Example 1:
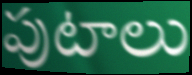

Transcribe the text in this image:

పుటాలు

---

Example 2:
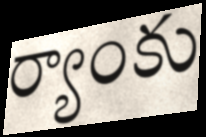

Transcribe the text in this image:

ర్యాంకు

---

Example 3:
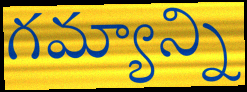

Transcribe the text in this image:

గమ్యాన్ని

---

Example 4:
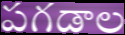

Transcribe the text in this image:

పగడాల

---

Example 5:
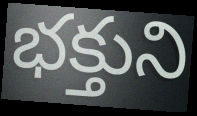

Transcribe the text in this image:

భక్తుని